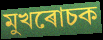
মুখৰোচক